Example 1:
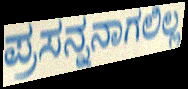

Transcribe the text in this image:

ಪ್ರಸನ್ನನಾಗಲಿಲ್ಲ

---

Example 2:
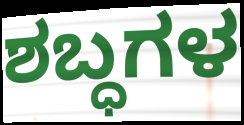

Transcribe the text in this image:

ಶಬ್ಧಗಳ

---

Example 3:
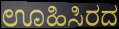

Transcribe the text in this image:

ಊಹಿಸಿರದ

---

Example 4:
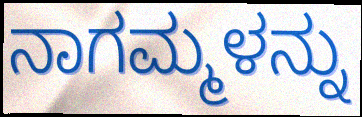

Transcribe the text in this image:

ನಾಗಮ್ಮಳನ್ನು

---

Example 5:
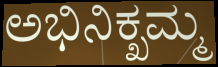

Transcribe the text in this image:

ಅಭಿನಿಕ್ಖಮ್ಮ